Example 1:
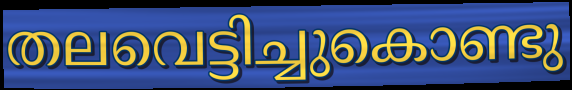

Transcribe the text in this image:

തലവെട്ടിച്ചുകൊണ്ടു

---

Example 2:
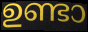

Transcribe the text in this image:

ഉണ്ടാ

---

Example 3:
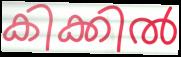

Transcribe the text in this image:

കിക്കിൽ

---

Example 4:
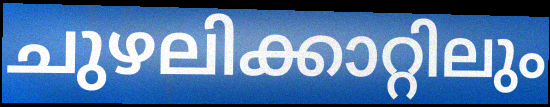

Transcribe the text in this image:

ചുഴലിക്കാറ്റിലും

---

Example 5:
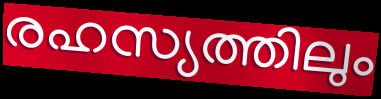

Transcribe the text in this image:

രഹസ്യത്തിലും